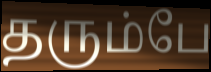
தரும்பே